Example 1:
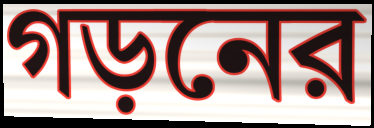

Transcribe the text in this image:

গড়নের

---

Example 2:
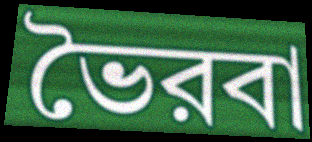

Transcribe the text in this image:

ভৈরবা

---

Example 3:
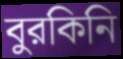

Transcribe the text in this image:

বুরকিনি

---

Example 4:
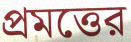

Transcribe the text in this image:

প্রমত্তের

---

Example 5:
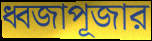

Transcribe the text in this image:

ধ্বজাপূজার